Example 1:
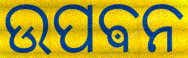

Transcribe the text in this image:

ଉପଵନ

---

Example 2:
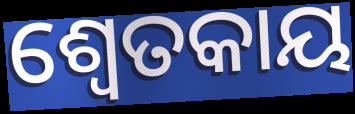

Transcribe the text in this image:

ଶ୍ବେତକାୟ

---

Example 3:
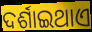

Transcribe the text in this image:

ଦର୍ଶାଇଥାଏ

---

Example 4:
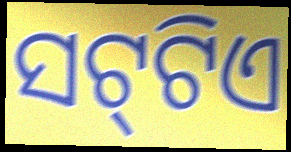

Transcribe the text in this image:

ସଟ୍‍ଟିଏ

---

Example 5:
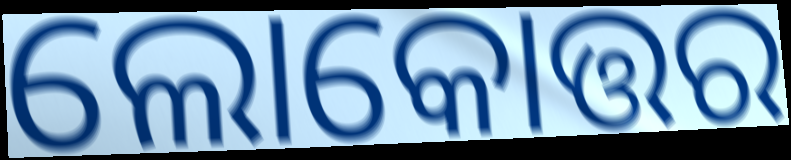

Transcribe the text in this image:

ଲୋକୋତ୍ତର